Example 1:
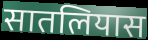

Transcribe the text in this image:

सातलियास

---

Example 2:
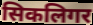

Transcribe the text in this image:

सिकलिगर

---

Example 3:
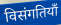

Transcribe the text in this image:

विसंगतियाँ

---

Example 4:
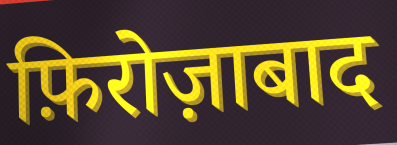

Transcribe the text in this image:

फ़िरोज़ाबाद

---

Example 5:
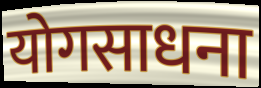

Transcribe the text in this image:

योगसाधना